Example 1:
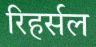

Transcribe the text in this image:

रिहर्सल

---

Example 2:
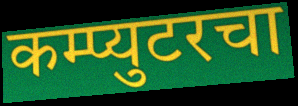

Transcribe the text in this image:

कम्प्युटरचा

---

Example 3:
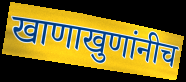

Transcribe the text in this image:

खाणाखुणांनीच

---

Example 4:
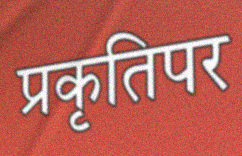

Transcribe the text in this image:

प्रकृतिपर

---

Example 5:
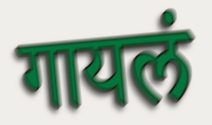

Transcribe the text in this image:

गायलं